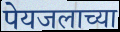
पेयजलाच्या